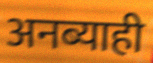
अनब्याही